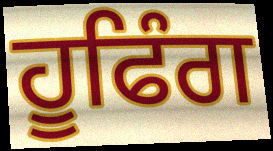
ਹੂਫਿੰਗ